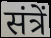
संत्रें